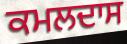
ਕਮਲਦਾਸ